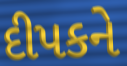
દીપકને